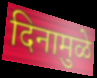
दिनामुळे